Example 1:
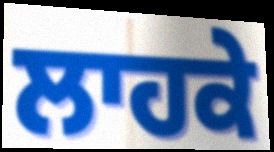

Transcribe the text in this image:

ਲਾਹਕੇ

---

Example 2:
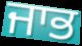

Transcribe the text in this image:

ਜਾਭ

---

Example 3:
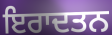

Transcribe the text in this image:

ਇਰਾਦਤਨ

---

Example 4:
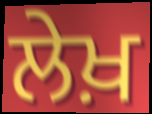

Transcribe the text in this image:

ਲੇਖ਼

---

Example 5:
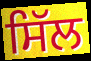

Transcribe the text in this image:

ਸਿੱਲ